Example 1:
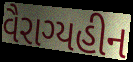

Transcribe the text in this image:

વૈરાગ્યહીન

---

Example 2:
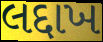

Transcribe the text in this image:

લદ્દાખ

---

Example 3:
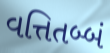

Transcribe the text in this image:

વત્તિતબ્બં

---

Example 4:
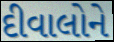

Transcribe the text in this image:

દીવાલોને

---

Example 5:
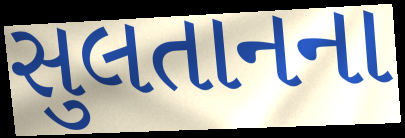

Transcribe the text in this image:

સુલતાનના